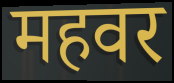
महवर